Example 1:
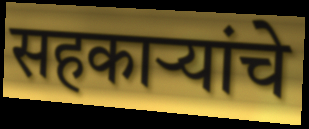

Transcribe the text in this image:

सहकाऱ्यांचे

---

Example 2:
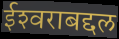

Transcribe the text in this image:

ईश्वराबद्दल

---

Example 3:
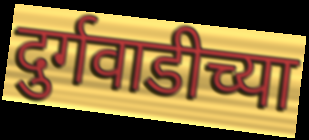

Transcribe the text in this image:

दुर्गवाडीच्या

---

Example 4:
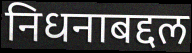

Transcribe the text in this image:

निधनाबद्दल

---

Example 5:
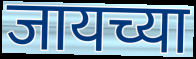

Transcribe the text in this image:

जायच्या